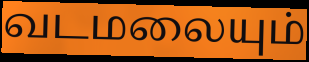
வடமலையும்